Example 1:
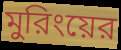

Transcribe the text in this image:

মুরিংয়ের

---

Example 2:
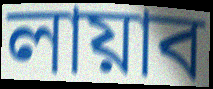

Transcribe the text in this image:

লায়াব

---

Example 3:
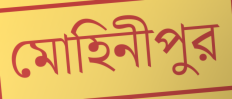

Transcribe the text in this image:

মোহিনীপুর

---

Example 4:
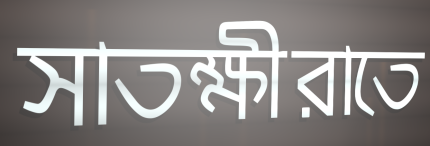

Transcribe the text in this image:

সাতক্ষীরাতে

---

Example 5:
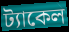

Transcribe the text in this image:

ট্যাকেল